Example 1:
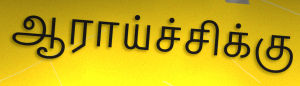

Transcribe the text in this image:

ஆராய்ச்சிக்கு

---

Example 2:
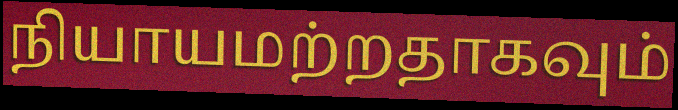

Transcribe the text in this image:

நியாயமற்றதாகவும்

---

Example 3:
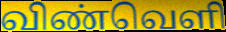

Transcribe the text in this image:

விண்வெளி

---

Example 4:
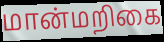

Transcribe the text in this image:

மான்மறிகை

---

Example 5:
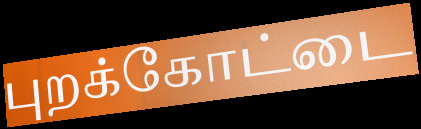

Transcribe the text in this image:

புறக்கோட்டை